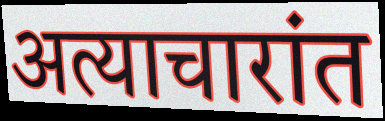
अत्याचारांत